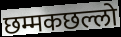
छम्मकछल्लो